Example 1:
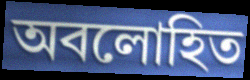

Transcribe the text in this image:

অবলোহিত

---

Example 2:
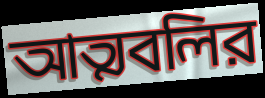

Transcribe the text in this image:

আত্মবলির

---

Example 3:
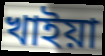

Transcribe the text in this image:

খাইয়া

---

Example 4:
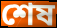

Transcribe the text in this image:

শেষ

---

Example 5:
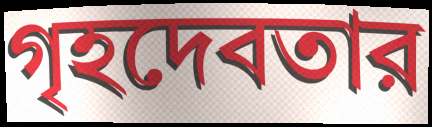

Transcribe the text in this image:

গৃহদেবতার